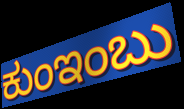
ಕುಂಇಂಬು